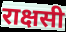
राक्षसी